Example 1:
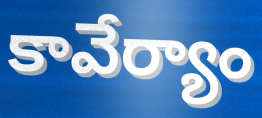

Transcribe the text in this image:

కావేర్యాం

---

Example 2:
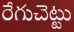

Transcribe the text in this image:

రేగుచెట్టు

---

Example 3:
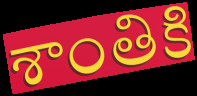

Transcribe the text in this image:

శాంతికి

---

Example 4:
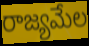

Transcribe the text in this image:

రాజ్యమేల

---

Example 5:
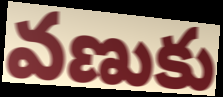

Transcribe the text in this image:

వణుకు